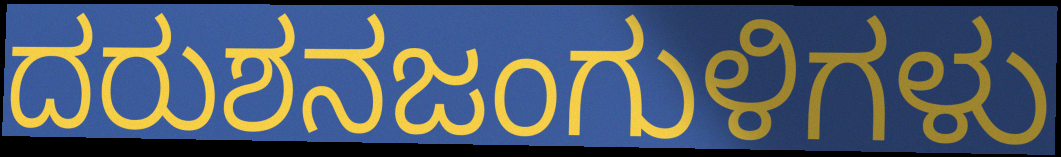
ದರುಶನಜಂಗುಳಿಗಳು